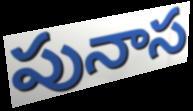
పునాస